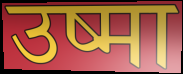
उष्मा